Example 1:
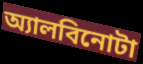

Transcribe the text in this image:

অ্যালবিনোটা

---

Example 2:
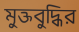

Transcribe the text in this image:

মুক্তবুদ্ধির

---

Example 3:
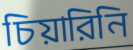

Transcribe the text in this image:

চিয়ারিনি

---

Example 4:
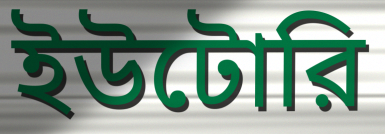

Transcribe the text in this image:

ইউটোরি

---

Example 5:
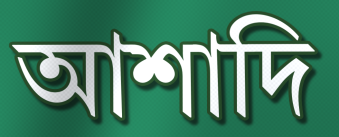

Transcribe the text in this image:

আশাদি